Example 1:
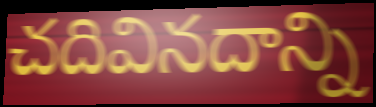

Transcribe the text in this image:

చదివినదాన్ని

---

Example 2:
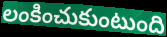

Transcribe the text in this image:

లంకించుకుంటుంది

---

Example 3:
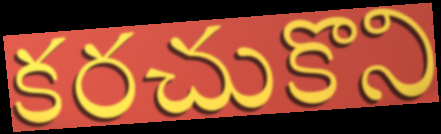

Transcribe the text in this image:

కరచుకొని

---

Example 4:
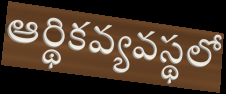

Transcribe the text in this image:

ఆర్థికవ్యవస్థలో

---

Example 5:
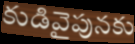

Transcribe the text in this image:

కుడివైపునకు